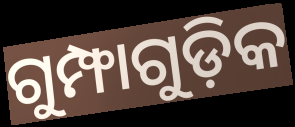
ଗୁମ୍ଫାଗୁଡ଼ିକ